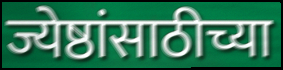
ज्येष्ठांसाठीच्या